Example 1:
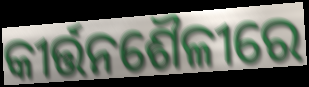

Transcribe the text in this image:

କୀର୍ତ୍ତନଶୈଳୀରେ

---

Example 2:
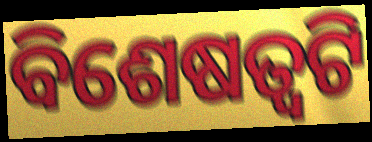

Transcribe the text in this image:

ବିଶେଷତ୍ୱଟି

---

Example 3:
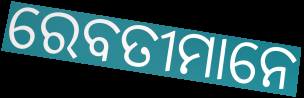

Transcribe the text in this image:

ରେବତୀମାନେ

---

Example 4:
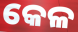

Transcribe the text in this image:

କେଳ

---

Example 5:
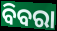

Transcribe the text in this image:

ବିବରା